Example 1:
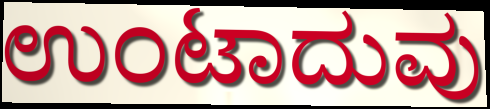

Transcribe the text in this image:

ಉಂಟಾದುವು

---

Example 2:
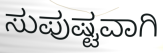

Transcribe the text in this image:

ಸುಪುಷ್ಟವಾಗಿ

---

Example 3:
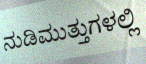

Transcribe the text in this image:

ನುಡಿಮುತ್ತುಗಳಲ್ಲಿ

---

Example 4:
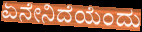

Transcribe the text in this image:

ಏನೇನಿದೆಯೆಂದು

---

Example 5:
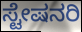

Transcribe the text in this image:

ಸ್ಟೇಷನರಿ